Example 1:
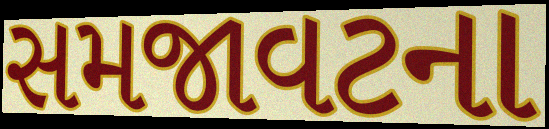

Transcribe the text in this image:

સમજાવટના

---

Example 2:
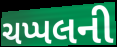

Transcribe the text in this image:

ચપ્પલની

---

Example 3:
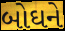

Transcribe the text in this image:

બોઘને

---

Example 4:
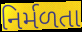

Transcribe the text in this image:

નિર્મળતા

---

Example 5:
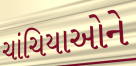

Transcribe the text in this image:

ચાંચિયાઓને